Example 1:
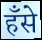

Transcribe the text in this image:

हँसे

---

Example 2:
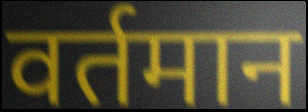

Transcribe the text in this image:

वर्तमान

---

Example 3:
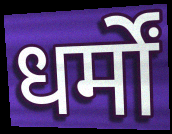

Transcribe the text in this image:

धर्मों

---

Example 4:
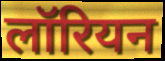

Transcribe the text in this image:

लॉरियन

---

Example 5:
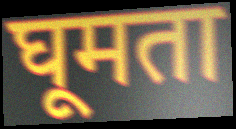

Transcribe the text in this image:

घूमता